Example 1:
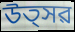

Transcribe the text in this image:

উত্সৱ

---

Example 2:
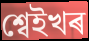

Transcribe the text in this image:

শ্বেইখৰ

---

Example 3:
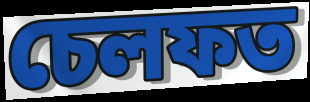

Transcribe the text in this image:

চেলফত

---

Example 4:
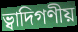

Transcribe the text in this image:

ভ্বাদিগণীয়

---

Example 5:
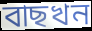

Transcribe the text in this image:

বাছখন